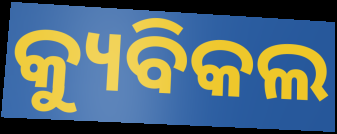
କ୍ୟୁବିକଲ